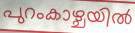
പുറംകാഴ്ചയിൽ